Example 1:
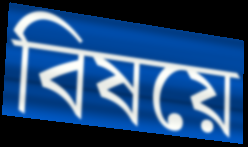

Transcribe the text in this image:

বিষয়ে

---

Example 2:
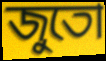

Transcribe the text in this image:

জুতো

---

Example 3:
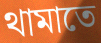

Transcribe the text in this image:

থামাতে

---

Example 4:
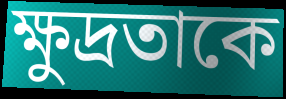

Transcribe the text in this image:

ক্ষুদ্রতাকে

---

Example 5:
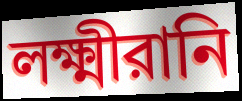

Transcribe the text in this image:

লক্ষ্মীরানি